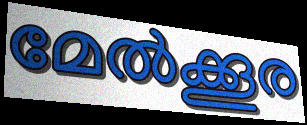
മേൽക്കൂര